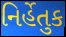
નિર્હેતુક